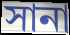
সানা